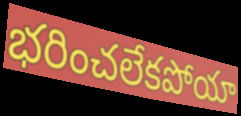
భరించలేకపోయా